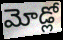
మోడ్లో